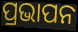
ପ୍ରଭାପନ